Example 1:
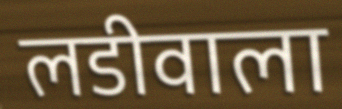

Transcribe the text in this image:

लडीवाला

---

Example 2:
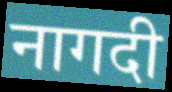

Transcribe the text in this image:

नागदी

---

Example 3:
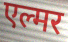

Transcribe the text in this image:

एल्मर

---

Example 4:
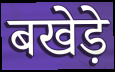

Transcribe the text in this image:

बखेड़े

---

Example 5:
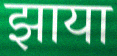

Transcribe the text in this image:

झाया